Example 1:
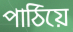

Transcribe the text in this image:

পাঠিয়ে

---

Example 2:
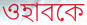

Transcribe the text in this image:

ওহাবকে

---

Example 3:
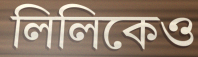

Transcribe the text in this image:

লিলিকেও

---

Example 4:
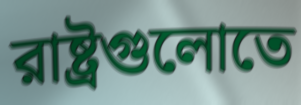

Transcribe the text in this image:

রাষ্ট্রগুলোতে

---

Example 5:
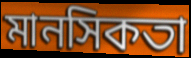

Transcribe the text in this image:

মানসিকতা